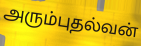
அரும்புதல்வன்